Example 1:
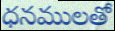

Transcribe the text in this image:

ధనములతో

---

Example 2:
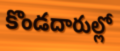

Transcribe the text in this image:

కొండదారుల్లో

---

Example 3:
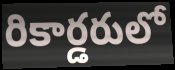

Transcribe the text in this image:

రికార్డరులో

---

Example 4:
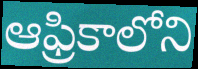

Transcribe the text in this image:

ఆఫ్రికాలోని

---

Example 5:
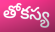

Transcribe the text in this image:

తోకస్య